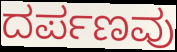
ದರ್ಪಣವು